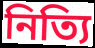
নিত্যি